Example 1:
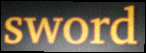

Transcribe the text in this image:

sword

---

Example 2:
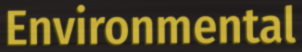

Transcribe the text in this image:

Environmental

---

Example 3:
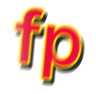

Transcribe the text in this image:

fp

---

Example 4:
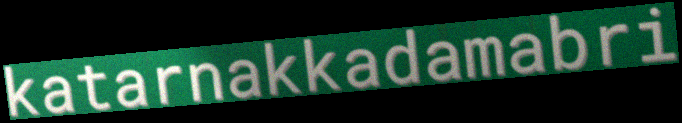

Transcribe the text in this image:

katarnakkadamabri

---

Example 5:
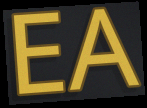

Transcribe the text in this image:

EA